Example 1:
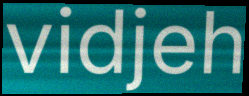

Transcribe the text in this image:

vidjeh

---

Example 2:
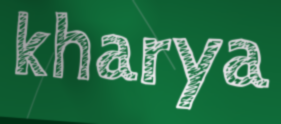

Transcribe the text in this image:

kharya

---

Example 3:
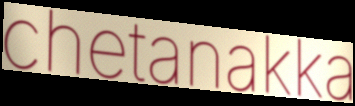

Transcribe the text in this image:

chetanakka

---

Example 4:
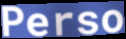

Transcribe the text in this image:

Perso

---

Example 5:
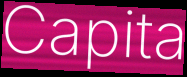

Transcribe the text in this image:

Capita